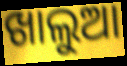
ଖାଲୁଆ